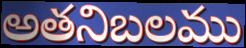
అతనిబలము